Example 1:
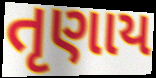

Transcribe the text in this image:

તૃણાય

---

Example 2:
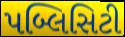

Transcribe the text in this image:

પબ્લિસિટી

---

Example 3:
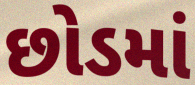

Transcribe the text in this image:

છોડમાં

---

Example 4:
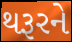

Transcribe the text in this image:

થરૂરને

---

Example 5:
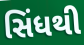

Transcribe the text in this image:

સિંધથી